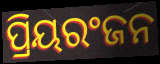
ପ୍ରିୟରଂଜନ